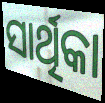
ସାର୍ଥିକା